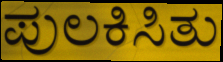
ಪುಲಕಿಸಿತು